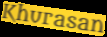
Khurasan